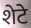
शेटे